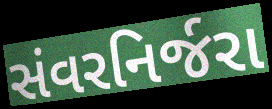
સંવરનિર્જરા